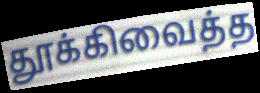
தூக்கிவைத்த